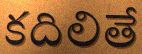
కదిలితే